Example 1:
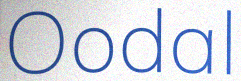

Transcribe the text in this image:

Oodal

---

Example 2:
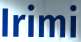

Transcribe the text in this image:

Irimi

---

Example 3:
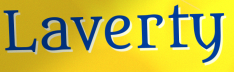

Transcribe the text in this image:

Laverty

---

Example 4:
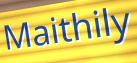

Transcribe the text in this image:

Maithily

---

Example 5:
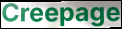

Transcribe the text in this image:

Creepage